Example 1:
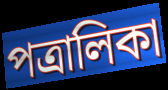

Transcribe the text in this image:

পত্রালিকা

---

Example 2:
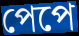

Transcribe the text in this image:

পেপে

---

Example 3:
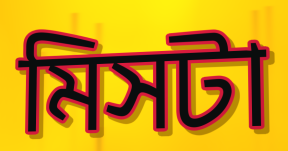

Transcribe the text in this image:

মিসটা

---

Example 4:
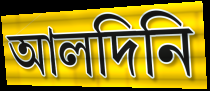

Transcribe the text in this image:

আলদিনি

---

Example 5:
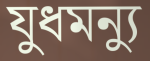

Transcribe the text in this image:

যুধমন্যু